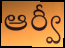
ఆర్వీ